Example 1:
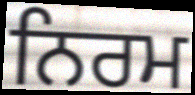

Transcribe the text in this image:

ਨਿਰਮ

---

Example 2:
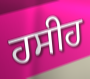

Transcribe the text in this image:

ਹਸੀਹ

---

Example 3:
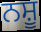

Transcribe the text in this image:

ਨਸ਼ੂ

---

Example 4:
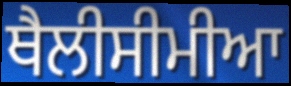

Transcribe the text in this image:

ਥੈਲੀਸੀਮੀਆ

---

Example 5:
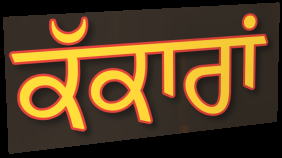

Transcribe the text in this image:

ਕੱਕਾਰਾਂ